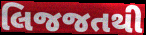
લિજજતથી